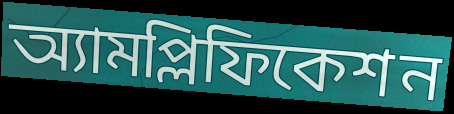
অ্যামপ্লিফিকেশন